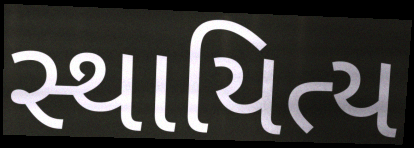
સ્થાયિત્ય